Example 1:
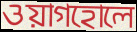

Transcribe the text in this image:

ওয়াগহোলে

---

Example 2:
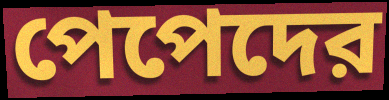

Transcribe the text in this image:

পেপেদের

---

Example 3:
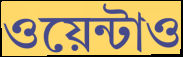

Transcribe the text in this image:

ওয়েন্টাও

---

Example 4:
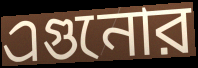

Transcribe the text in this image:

এগুনোর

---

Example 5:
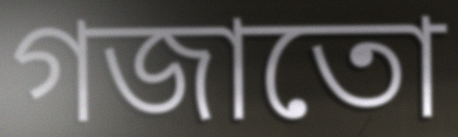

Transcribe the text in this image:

গজাতো